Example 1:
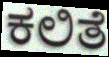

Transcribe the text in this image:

ಕಲಿತೆ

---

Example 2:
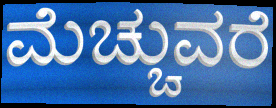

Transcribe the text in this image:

ಮೆಚ್ಚುವರೆ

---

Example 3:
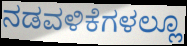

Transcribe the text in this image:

ನಡವಳಿಕೆಗಳಲ್ಲೂ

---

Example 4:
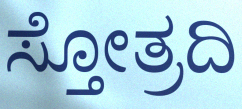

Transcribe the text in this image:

ಸ್ತೋತ್ರದಿ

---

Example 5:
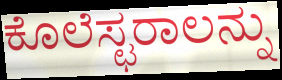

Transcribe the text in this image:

ಕೊಲೆಸ್ಟರಾಲನ್ನು